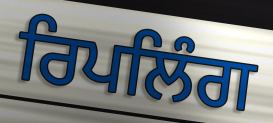
ਰਿਪਲਿੰਗ